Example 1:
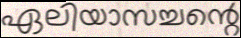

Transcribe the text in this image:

ഏലിയാസച്ചന്റെ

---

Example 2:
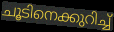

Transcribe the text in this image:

ചൂടിനെക്കുറിച്ച്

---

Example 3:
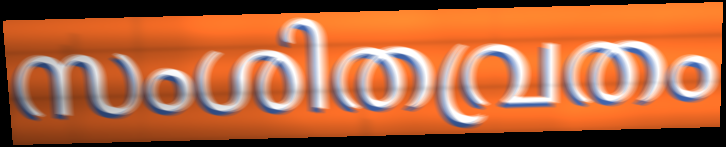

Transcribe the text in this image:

സംശിതവ്രതം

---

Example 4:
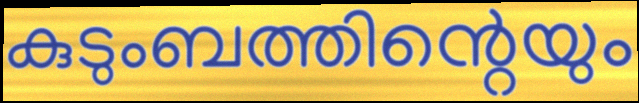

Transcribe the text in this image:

കുടുംബത്തിന്റെയും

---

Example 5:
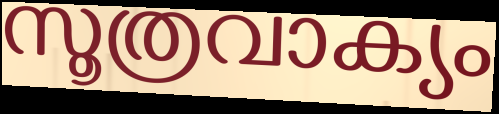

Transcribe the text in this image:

സൂത്രവാക്യം